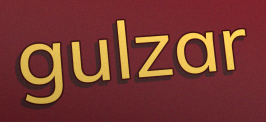
gulzar